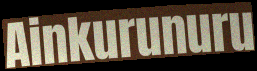
Ainkurunuru